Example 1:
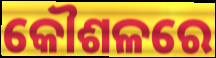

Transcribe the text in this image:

କୌଶଳରେ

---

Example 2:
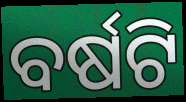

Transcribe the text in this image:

ବର୍ଷଟି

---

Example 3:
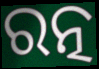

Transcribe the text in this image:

ରତ୍ନ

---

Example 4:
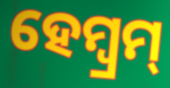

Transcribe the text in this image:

ହେମ୍ବ୍ରମ୍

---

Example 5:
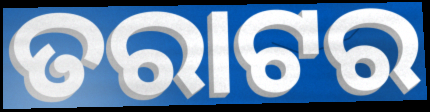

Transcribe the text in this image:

ତରାଟର